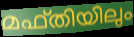
മഫ്തിയിലും